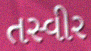
તસ્વીર